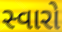
સ્વારો